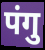
पंगु